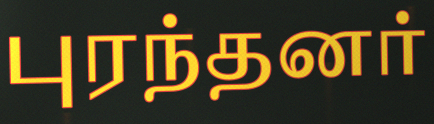
புரந்தனர்